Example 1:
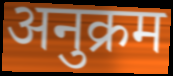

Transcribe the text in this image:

अनुक्रम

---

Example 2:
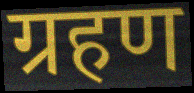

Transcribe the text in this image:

ग्रहण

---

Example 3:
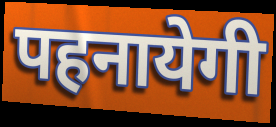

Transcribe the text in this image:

पहनायेगी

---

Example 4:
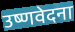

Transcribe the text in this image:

उष्णवेदना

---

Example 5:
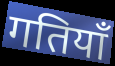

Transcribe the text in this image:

गतियाँ